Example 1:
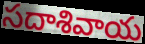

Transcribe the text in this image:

సదాశివాయ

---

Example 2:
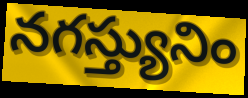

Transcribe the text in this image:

నగస్త్యునిం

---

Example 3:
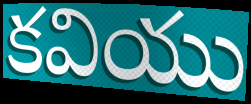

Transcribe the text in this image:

కవియు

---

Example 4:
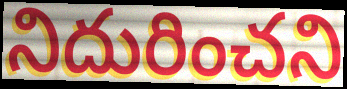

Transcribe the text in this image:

నిదురించని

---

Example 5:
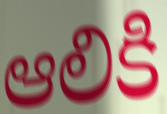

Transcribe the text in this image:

ఆలికి